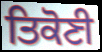
ਤਿਕੋਣੀ